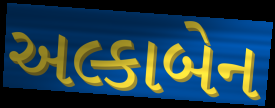
અલ્કાબેન